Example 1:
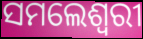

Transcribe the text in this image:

ସମଲେଶ୍ୱରୀ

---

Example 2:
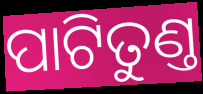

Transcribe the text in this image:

ପାଟିତୁଣ୍ତ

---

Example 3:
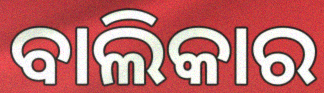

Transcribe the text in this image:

ବାଲିକାର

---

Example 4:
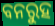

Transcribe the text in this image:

ବନରୁହ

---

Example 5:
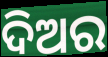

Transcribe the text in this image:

ଦିଅର